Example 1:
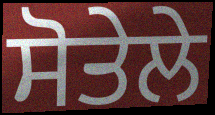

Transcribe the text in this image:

ਸੋਤੇਲੇ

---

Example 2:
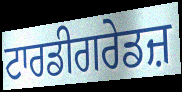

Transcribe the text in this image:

ਟਾਰਡੀਗਰੇਡਜ਼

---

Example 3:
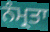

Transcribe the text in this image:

ਨੰਮ੍ਰਤਾ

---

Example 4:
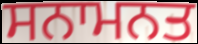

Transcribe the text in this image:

ਸਨਾਮਨਤ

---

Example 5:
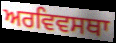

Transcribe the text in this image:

ਅਰਵਿਵਸਥਾ